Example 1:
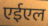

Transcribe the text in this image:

एईएल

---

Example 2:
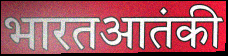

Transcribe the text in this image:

भारतआतंकी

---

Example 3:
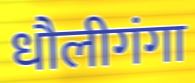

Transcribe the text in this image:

धौलीगंगा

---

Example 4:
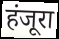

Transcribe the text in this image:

हंजूरा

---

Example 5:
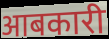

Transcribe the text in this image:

आबकारी